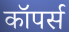
कॉपर्स